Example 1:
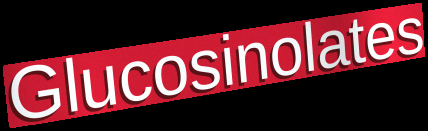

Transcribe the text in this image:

Glucosinolates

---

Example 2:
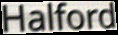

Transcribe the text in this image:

Halford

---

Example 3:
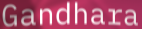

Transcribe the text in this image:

Gandhara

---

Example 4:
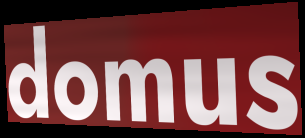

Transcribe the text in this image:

domus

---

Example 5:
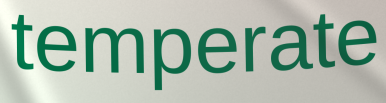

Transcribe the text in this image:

temperate